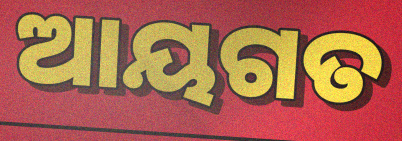
ଆୟଗତ